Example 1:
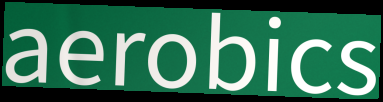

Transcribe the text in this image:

aerobics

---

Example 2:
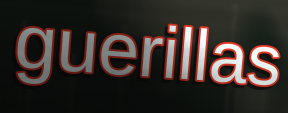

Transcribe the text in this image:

guerillas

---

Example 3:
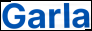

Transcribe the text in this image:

Garla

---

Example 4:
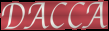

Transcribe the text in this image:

DACCA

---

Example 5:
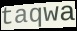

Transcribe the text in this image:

taqwa